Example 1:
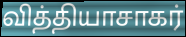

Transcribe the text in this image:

வித்தியாசாகர்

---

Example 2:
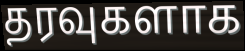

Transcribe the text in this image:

தரவுகளாக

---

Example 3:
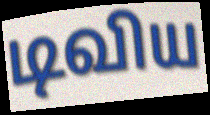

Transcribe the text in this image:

டிவிய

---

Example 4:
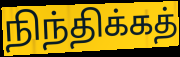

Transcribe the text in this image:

நிந்திக்கத்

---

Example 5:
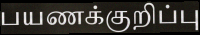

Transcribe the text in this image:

பயணக்குறிப்பு